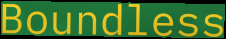
Boundless